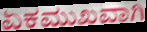
ಏಕಮುಖವಾಗಿ